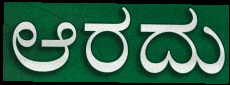
ಆರದು